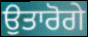
ਉਤਾਰੋਗੇ